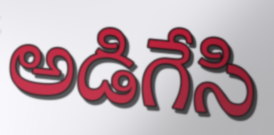
అడిగేసి